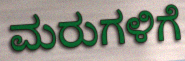
ಮರುಗಳಿಗೆ